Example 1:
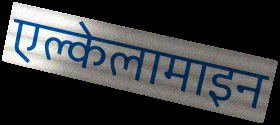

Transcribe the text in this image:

एल्केलामाइन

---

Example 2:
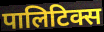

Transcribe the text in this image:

पालिटिक्स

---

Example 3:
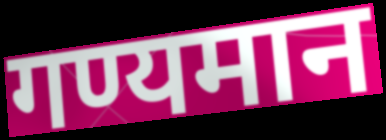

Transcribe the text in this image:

गण्यमान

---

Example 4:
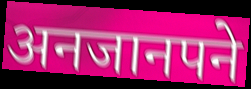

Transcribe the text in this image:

अनजानपने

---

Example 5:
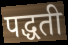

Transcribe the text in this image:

पद्धती